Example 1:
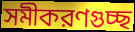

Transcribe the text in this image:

সমীকরণগুচ্ছ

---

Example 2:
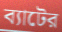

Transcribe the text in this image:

ব্যাটের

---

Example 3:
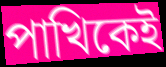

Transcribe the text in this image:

পাখিকেই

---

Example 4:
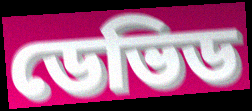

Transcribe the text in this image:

ডেভিড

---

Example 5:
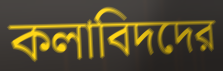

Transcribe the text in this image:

কলাবিদদের